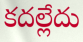
కదల్లేదు